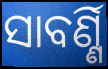
ସାବର୍ଣ୍ଣି